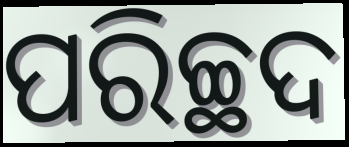
ପରିଚ୍ଛଦ